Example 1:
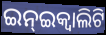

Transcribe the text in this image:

ଇନ୍ଇକ୍ଵାଲିଟି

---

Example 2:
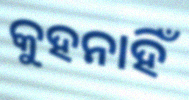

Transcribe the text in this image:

କୁହନାହିଁ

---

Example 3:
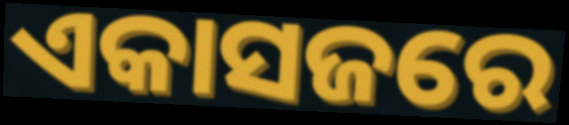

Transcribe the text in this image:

ଏକାସଜରେ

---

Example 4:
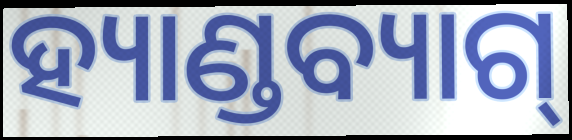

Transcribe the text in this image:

ହ୍ୟାଣ୍ଡବ୍ୟାଗ୍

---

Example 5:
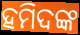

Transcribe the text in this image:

ହମିଦଙ୍କ